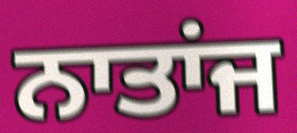
ਨਾਤਾਂਜ